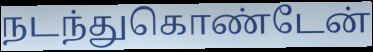
நடந்துகொண்டேன்